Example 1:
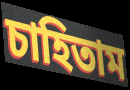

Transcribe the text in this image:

চাহিতাম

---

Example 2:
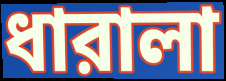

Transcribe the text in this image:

ধারালা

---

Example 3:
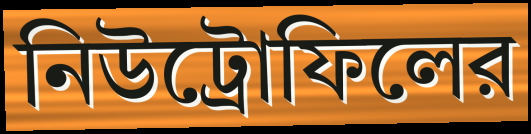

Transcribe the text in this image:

নিউট্রোফিলের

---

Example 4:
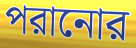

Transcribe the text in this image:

পরানোর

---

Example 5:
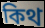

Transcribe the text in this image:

কিথ